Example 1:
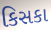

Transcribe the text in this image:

કિસકા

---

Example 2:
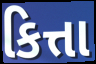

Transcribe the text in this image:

કિત્તા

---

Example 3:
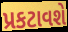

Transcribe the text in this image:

પ્રકટાવશે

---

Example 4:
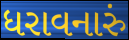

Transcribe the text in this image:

ધરાવનારું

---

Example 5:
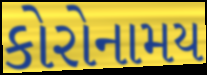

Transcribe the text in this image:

કોરોનામય